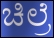
ಚಿಲ್ರೆ